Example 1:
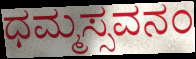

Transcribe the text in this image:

ಧಮ್ಮಸ್ಸವನಂ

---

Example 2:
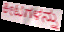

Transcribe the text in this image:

ಕೀಟಗಳನ್ನು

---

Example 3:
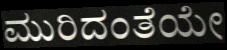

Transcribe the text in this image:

ಮುರಿದಂತೆಯೇ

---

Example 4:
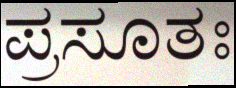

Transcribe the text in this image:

ಪ್ರಸೂತಃ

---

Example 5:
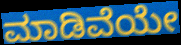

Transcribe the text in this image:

ಮಾಡಿವೆಯೇ